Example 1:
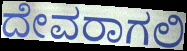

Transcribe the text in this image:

ದೇವರಾಗಲಿ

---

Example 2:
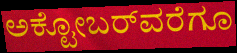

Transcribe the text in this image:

ಅಕ್ಟೋಬರ್‌ವರೆಗೂ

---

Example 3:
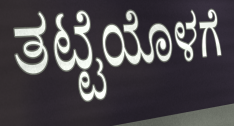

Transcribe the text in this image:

ತಟ್ಟೆಯೊಳಗೆ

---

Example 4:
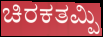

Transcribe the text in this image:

ಚಿರಕತಮ್ಪಿ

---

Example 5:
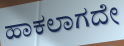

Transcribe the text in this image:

ಹಾಕಲಾಗದೇ